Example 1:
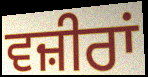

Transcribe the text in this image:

ਵਜ਼ੀਰਾਂ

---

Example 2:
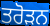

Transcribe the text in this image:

ਤਰੋੜਨ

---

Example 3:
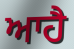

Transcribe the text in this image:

ਆਹੈ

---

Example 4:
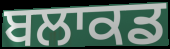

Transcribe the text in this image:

ਬਲਾਕਡ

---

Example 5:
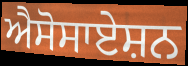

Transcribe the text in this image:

ਐਸੋਸਾਏਸ਼ਨ